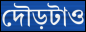
দৌড়টাও